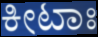
ಕೀಟಾಃ